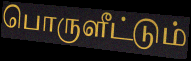
பொருளீட்டும்